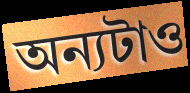
অন্যটাও